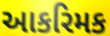
આકરિમક